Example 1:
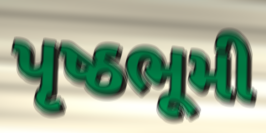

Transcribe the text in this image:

પૃષ્ઠભૂમી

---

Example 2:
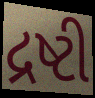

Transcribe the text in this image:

દ્રષ્ટી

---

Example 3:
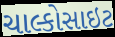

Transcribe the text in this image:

ચાલ્કોસાઇટ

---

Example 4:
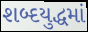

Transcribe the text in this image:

શબ્દયુદ્ધમાં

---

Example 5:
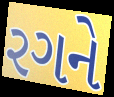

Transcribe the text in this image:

રગને